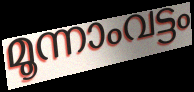
മൂന്നാംവട്ടം